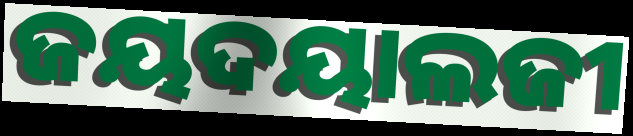
ଜୟଦୟାଲଜୀ